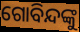
ଗୋବିନ୍ଦଙ୍କୁ